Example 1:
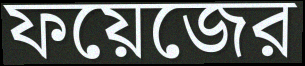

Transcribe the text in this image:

ফয়েজের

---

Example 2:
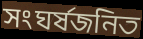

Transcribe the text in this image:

সংঘর্ষজনিত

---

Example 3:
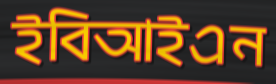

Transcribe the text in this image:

ইবিআইএন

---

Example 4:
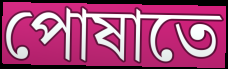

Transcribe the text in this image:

পোষাতে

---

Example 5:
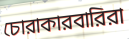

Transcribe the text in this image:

চোরাকারবারিরা